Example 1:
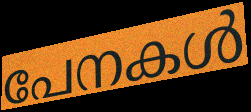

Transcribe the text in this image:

പേനകൾ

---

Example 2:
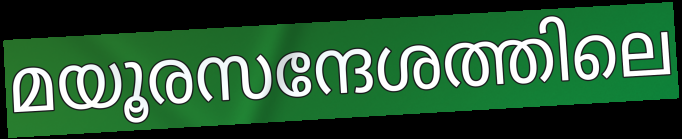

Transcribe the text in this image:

മയൂരസന്ദേശത്തിലെ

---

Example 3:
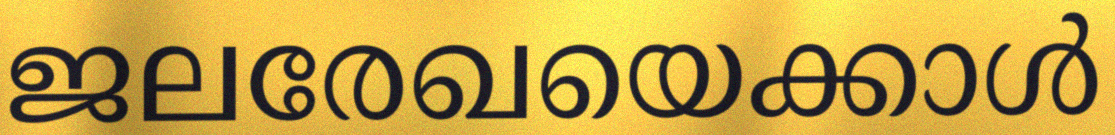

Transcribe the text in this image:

ജലരേഖയെക്കാൾ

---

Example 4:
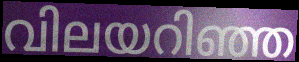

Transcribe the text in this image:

വിലയറിഞ്ഞ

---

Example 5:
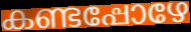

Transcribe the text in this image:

കണ്ടപ്പോഴേ